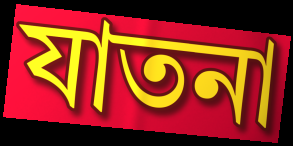
যাতনা